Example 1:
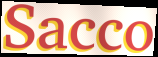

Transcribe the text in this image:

Sacco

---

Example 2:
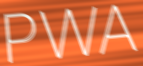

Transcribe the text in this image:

PWA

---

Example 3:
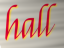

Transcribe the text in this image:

hall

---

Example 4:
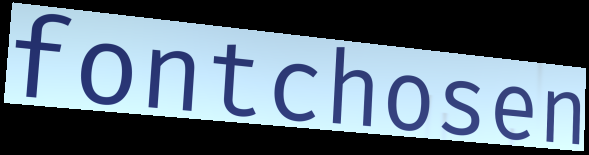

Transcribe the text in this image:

fontchosen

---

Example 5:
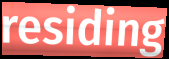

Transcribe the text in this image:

residing